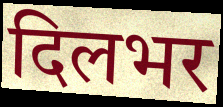
दिलभर